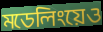
মডেলিংয়েও